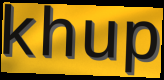
khup